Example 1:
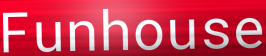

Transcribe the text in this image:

Funhouse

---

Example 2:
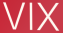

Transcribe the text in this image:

VIX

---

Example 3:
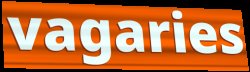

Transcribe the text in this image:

vagaries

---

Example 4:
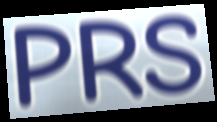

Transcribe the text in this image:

PRS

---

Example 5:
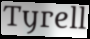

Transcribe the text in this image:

Tyrell